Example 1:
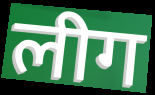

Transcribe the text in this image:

लीग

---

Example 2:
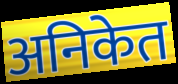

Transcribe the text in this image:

अनिकेत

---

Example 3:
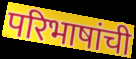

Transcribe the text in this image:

परिभाषांची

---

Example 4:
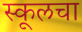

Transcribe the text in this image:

स्कूलचा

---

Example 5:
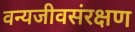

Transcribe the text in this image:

वन्यजीवसंरक्षण